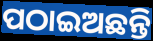
ପଠାଇଅଛନ୍ତି